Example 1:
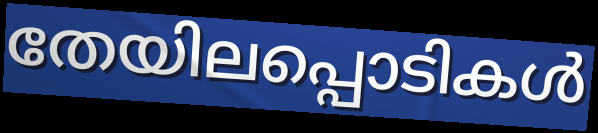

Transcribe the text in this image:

തേയിലപ്പൊടികൾ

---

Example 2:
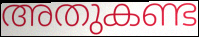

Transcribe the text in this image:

അതുകണ്ട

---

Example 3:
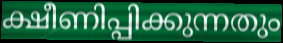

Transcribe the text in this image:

ക്ഷീണിപ്പിക്കുന്നതും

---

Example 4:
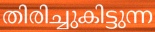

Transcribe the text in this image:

തിരിച്ചുകിട്ടുന്ന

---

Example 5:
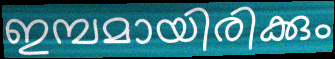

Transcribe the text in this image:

ഇമ്പമായിരിക്കും